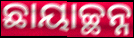
ଛାୟାଚ୍ଛନ୍ନ